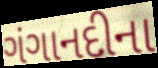
ગંગાનદીના